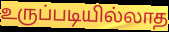
உருப்படியில்லாத